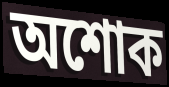
অশোক